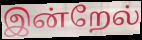
இன்றேல்